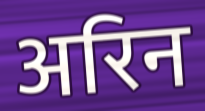
अरिन